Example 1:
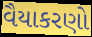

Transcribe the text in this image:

વૈયાકરણો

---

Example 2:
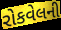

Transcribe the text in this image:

રોકવેલની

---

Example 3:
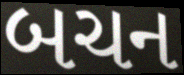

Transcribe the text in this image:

બચન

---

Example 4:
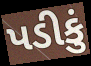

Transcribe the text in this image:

પડીકું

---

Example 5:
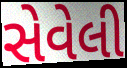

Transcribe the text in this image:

સેવેલી